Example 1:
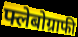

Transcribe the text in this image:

फ्लेबोग्राफी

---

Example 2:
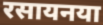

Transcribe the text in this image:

रसायनया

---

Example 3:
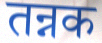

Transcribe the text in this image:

तन्नक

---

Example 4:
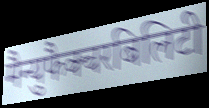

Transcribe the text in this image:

मैन्युफैक्चरबिलिटी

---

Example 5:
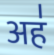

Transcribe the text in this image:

अह॑